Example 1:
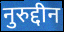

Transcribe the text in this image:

नुरुद्दीन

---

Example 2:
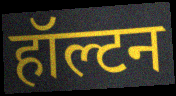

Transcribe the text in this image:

हॉल्टन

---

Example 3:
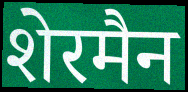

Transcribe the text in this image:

शेरमैन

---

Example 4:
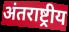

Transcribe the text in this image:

अंतराष्ट्रीय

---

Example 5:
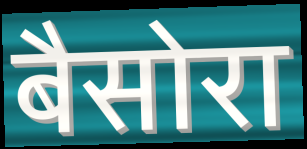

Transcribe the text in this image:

बैसोरा